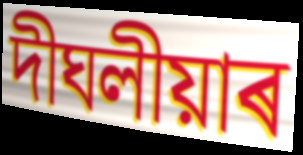
দীঘলীয়াৰ